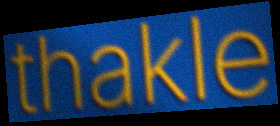
thakle